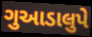
ગુઆડાલુપે